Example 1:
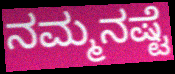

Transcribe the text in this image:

ನಮ್ಮನಷ್ಟೆ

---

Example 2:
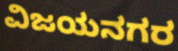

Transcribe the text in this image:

ವಿಜಯನಗರ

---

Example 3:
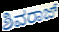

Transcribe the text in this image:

ಶಿವರಾಜ್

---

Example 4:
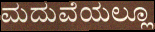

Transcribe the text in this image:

ಮದುವೆಯಲ್ಲೂ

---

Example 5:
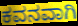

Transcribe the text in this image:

ಕವನವಾಗಿ